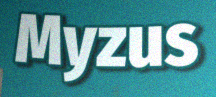
Myzus